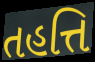
તહત્તિ